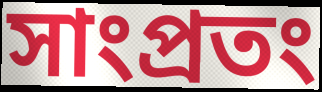
সাংপ্রতং